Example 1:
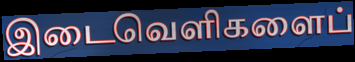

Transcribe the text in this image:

இடைவெளிகளைப்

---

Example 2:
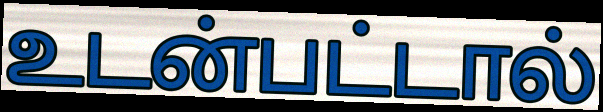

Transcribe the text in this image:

உடன்பட்டால்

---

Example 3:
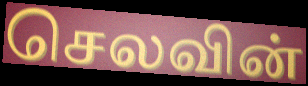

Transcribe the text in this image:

செலவின்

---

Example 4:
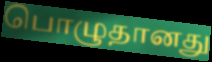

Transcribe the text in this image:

பொழுதானது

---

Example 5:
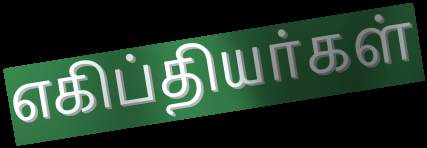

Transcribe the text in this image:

எகிப்தியர்கள்